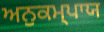
ਅਨੁਕਮ੍ਪਾਯ